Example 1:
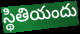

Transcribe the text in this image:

స్థితియందు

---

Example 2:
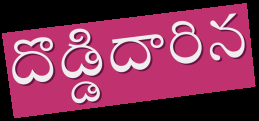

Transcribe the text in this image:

దొడ్డిదారిన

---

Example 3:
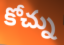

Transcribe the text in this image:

కోచ్ను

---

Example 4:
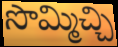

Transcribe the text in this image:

సొమ్మిచ్చి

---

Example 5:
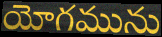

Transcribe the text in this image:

యోగమును